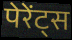
पेरेंट्स